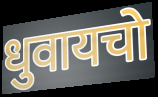
धुवायचो